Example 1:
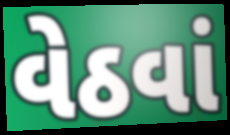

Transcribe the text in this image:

વેઠવાં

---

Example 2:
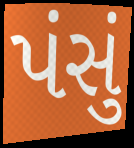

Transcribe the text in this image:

પંસું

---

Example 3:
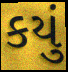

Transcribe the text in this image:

કયું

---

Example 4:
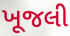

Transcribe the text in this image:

ખૂજલી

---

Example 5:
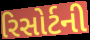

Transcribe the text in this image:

રિસોર્ટની